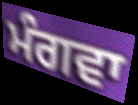
ਮੰਗਵਾ